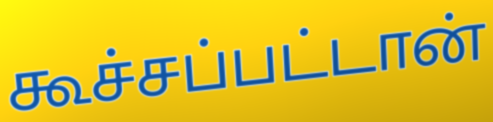
கூச்சப்பட்டான்